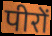
पीरों